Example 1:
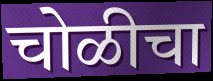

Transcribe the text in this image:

चोळीचा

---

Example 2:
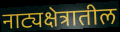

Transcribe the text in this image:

नाट्यक्षेत्रातील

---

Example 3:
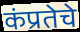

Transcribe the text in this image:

कंप्रतेचे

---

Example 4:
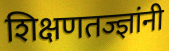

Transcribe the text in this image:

शिक्षणतज्ज्ञांनी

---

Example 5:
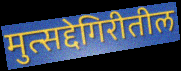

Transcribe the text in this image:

मुत्सद्देगिरीतील